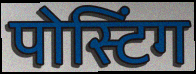
पोस्टिंग